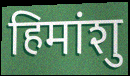
हिमांशु